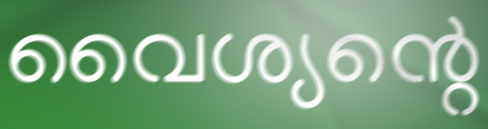
വൈശ്യന്റെ